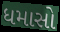
ધમાસો